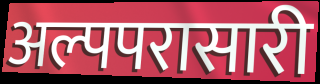
अल्पपरासारी